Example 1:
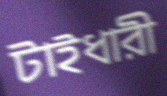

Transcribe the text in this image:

টাইধারী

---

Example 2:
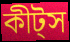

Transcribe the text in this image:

কীট্স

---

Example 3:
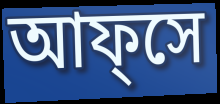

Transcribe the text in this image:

আফ্সে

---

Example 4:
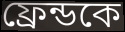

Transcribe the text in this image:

ফ্রেন্ডকে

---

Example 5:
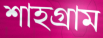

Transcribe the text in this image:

শাহগ্রাম